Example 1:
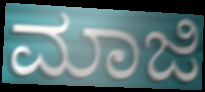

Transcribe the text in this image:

ಮಾಜಿ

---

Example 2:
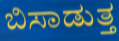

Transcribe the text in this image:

ಬಿಸಾಡುತ್ತ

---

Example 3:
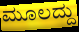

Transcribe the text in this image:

ಮೂಲದ್ದು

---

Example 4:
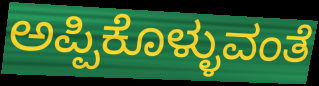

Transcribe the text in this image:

ಅಪ್ಪಿಕೊಳ್ಳುವಂತೆ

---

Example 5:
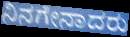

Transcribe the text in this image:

ನಿನಗೇನಾದರು